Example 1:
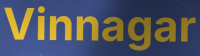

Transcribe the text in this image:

Vinnagar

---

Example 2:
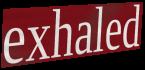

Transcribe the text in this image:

exhaled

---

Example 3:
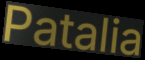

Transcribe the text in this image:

Patalia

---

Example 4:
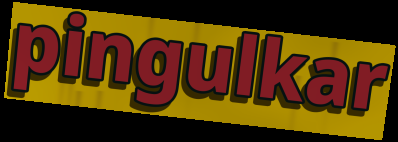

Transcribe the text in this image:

pingulkar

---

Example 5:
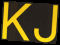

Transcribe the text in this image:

KJ